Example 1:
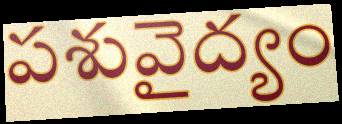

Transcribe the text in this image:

పశువైద్యం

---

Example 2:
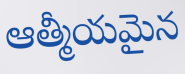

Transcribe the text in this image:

ఆత్మీయమైన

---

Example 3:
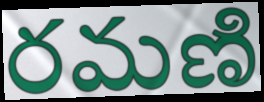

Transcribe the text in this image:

రమణి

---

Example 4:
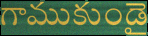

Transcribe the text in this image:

గాముకుండై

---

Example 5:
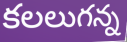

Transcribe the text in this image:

కలలుగన్న